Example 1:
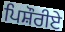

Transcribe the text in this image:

ਪਿਸ਼ੌਰੀਏ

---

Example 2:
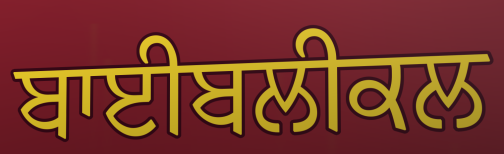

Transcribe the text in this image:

ਬਾਈਬਲੀਕਲ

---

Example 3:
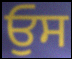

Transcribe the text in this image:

ਓੁਸ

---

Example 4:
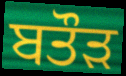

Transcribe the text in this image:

ਬਤੌੜ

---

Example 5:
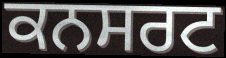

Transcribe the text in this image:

ਕਨਸਰਟ